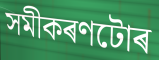
সমীকৰণটোৰ